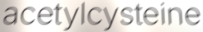
acetylcysteine